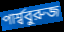
পার্শ্ববুরুজ